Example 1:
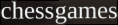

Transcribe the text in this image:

chessgames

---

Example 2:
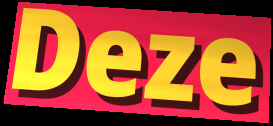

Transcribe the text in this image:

Deze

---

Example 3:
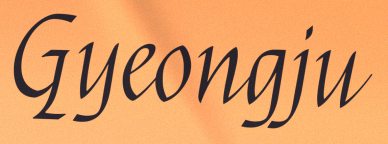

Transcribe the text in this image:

Gyeongju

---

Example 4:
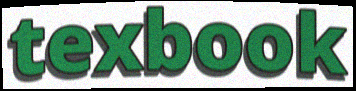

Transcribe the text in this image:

texbook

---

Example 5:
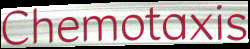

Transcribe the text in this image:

Chemotaxis